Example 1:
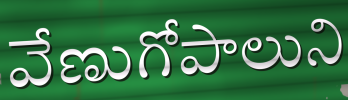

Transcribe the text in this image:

వేణుగోపాలుని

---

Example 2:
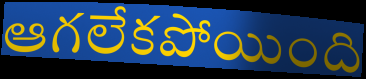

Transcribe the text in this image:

ఆగలేకపోయింది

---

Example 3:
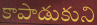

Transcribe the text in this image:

కాపాడుకుని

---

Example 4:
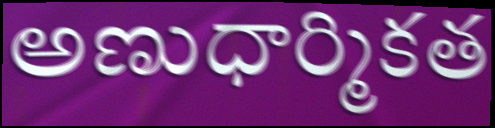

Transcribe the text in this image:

అణుధార్మికత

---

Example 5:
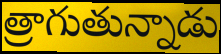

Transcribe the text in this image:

త్రాగుతున్నాడు